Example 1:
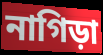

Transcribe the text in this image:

নাগিড়া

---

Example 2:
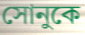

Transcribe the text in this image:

সোনুকে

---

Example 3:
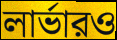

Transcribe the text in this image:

লার্ভারও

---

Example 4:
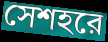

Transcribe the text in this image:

সেশহরে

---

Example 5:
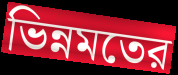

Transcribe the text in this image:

ভিন্নমতের